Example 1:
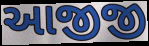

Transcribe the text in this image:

આજીજી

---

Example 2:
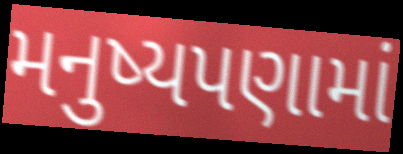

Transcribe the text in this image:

મનુષ્યપણામાં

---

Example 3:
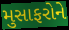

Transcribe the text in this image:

મુસાફરોને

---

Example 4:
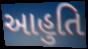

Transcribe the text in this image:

આહુતિ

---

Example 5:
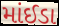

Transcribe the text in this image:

માંઈડા